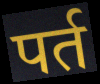
पर्त